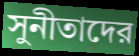
সুনীতাদের